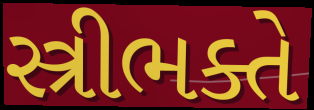
સ્ત્રીભક્તે